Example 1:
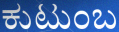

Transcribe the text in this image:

ಕುಟುಂಬ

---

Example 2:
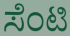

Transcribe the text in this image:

ಸೆಂಟಿ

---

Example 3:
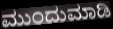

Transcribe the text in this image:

ಮುಂದುಮಾಡಿ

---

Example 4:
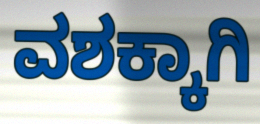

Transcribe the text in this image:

ವಶಕ್ಕಾಗಿ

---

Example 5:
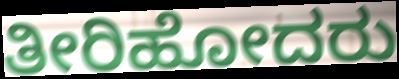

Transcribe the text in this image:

ತೀರಿಹೋದರು